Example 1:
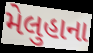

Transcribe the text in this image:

મેલુહાના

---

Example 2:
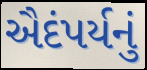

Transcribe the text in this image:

ઐદંપર્યનું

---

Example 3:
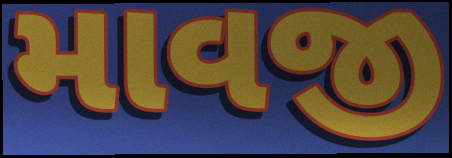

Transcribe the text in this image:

માવજી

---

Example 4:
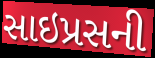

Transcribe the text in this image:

સાઇપ્રસની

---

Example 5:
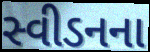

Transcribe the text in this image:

સ્વીડનના